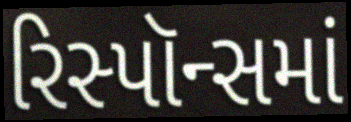
રિસ્પૉન્સમાં